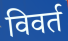
विवर्त